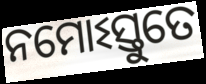
ନମୋଽସ୍ତୁତେ